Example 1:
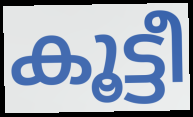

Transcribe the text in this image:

കൂട്ടീ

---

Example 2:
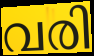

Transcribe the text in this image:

വരി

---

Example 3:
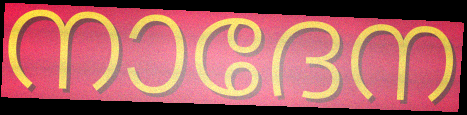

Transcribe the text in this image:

നാദേന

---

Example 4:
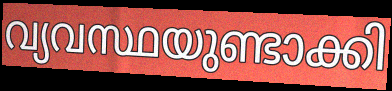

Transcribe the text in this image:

വ്യവസ്ഥയുണ്ടാക്കി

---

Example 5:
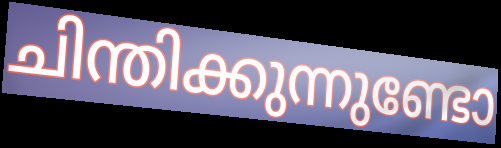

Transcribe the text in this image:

ചിന്തിക്കുന്നുണ്ടോ